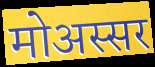
मोअस्सर